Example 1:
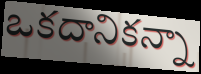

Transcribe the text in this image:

ఒకదానికన్నా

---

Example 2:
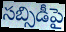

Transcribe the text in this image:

సబ్సిడీపై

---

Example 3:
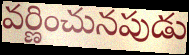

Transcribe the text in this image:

వర్ణించునపుడు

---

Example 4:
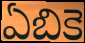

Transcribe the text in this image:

ఏబికె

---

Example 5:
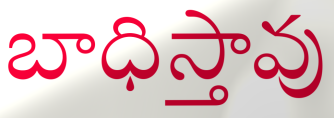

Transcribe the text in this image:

బాధిస్తావు